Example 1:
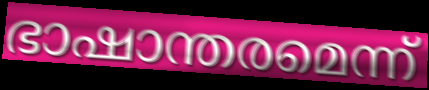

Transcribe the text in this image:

ഭാഷാന്തരമെന്ന്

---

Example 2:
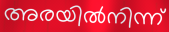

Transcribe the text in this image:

അരയിൽനിന്ന്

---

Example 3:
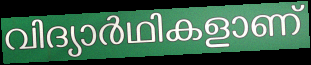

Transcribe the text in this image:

വിദ്യാർഥികളാണ്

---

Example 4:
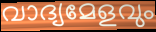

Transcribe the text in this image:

വാദ്യമേളവും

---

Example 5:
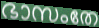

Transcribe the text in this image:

ഭാസംതേ